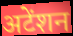
अटेंशन